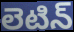
లెటిన్